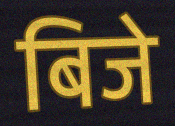
बिजे